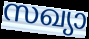
സഖ്യാ